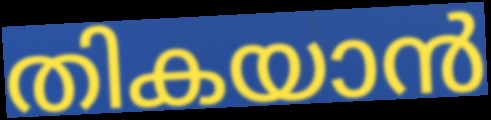
തികയാൻ